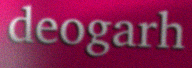
deogarh